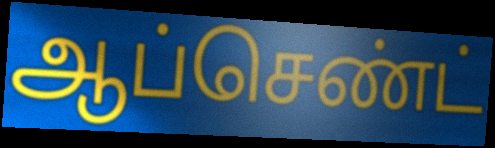
ஆப்செண்ட்